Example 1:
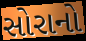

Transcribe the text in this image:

સોરાનો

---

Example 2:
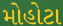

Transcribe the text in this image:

મોહોટા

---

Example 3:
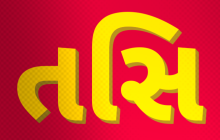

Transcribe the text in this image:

તસિ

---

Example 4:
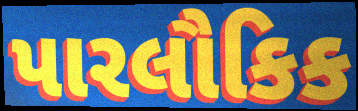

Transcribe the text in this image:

પારલૌકિક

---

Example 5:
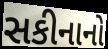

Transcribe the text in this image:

સકીનાનો